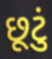
છૂટું